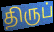
திருப்